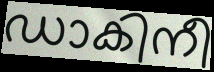
ഡാകിനീ